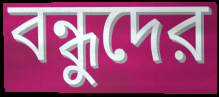
বন্ধুদের